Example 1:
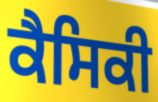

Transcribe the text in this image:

ਕੈਸਿਕੀ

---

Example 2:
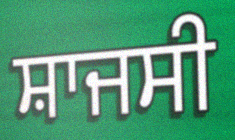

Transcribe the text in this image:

ਸ਼ਾਜਸੀ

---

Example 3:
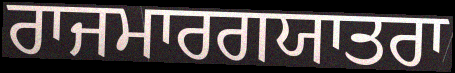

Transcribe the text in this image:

ਰਾਜਮਾਰਗਯਾਤਰਾ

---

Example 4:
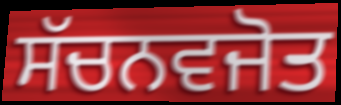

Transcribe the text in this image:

ਸੱਚਨਵਜੋਤ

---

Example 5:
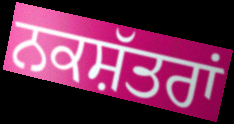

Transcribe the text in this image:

ਨਕਸ਼ੱਤਰਾਂ